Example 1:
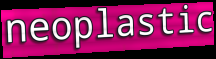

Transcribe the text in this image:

neoplastic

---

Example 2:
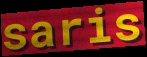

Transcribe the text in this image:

saris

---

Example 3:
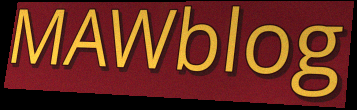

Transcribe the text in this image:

MAWblog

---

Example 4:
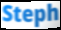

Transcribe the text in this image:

Steph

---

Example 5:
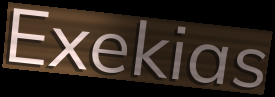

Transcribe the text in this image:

Exekias